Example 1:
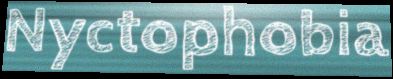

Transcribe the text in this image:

Nyctophobia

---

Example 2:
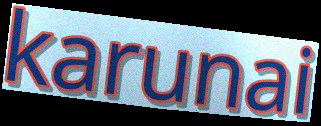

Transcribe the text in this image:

karunai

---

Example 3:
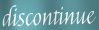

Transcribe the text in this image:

discontinue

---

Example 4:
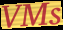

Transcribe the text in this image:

VMs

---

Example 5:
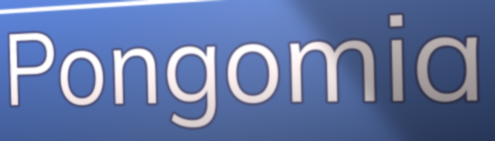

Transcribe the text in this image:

Pongomia